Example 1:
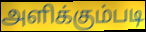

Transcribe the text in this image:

அளிக்கும்படி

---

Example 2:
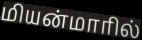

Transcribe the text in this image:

மியன்மாரில்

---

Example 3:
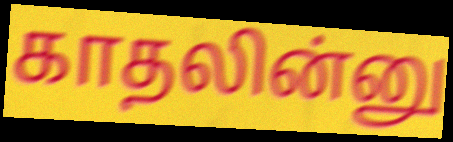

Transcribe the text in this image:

காதலின்னு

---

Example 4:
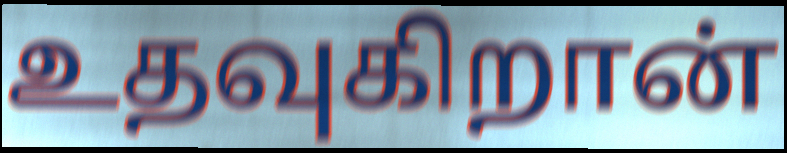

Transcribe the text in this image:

உதவுகிறான்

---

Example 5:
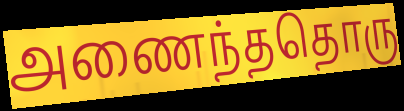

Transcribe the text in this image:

அணைந்ததொரு